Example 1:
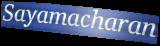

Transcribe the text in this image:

Sayamacharan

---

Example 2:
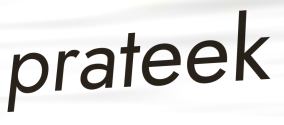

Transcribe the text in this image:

prateek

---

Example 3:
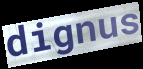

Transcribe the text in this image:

dignus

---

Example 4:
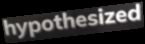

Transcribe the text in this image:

hypothesized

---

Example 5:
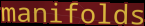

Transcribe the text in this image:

manifolds